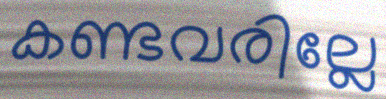
കണ്ടവരില്ലേ